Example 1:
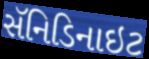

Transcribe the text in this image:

સૅનિડિનાઇટ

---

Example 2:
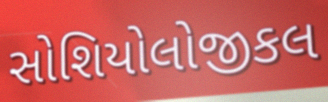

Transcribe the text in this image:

સોશિયોલોજીકલ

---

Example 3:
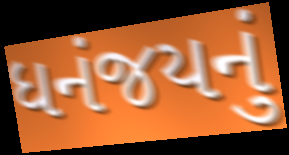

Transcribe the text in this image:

ધનંજયનું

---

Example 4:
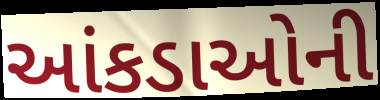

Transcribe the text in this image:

આંકડાઓની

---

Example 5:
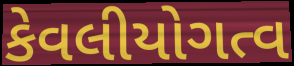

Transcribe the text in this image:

કેવલીયોગત્વ